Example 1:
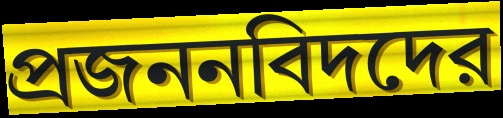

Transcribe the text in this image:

প্রজননবিদদের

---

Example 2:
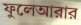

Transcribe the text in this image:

ফুলেআরার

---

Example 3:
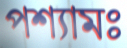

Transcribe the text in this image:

পশ্যামঃ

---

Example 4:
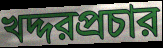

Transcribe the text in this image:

খদ্দরপ্রচার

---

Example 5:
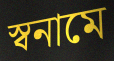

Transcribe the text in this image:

স্বনামে